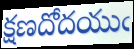
క్షణదోదయుఁ